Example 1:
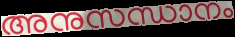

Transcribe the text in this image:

അനുസന്ധാനം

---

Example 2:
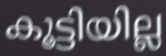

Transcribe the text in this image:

കൂട്ടിയില്ല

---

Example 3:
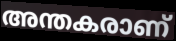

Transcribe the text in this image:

അന്തകരാണ്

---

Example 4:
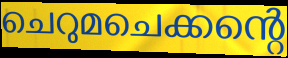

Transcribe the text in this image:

ചെറുമചെക്കന്റെ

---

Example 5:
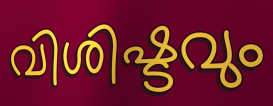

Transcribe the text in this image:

വിശിഷ്ടവും